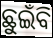
ଛୁଇଁବି